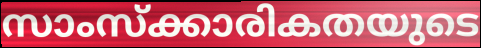
സാംസ്ക്കാരികതയുടെ